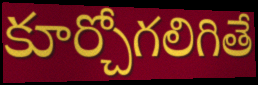
కూర్చోగలిగితే